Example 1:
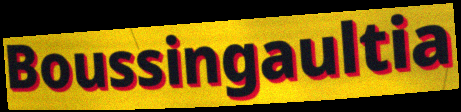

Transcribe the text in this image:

Boussingaultia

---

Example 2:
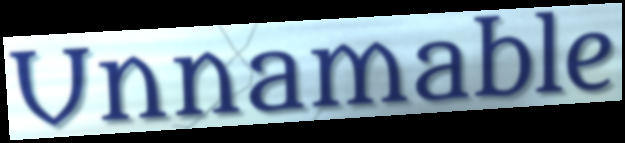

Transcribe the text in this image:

Unnamable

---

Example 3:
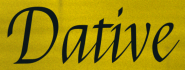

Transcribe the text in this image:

Dative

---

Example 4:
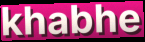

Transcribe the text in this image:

khabhe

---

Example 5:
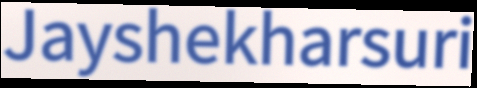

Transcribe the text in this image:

Jayshekharsuri